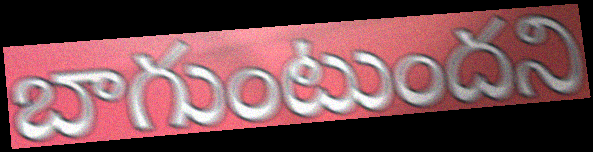
బాగుంటుందని